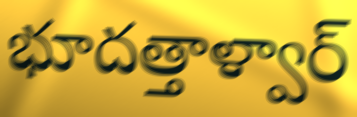
భూదత్తాళ్వార్